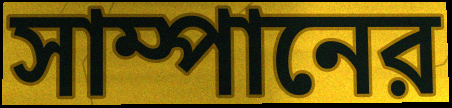
সাম্পানের